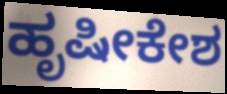
ಹೃಷೀಕೇಶ